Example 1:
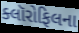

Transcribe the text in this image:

ક્લૉરોફિલના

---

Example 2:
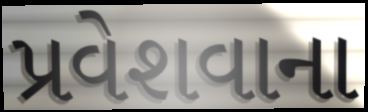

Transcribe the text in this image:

પ્રવેશવાના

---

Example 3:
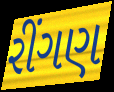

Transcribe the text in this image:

રીંગણ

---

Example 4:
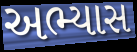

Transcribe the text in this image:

અભ્યાસ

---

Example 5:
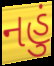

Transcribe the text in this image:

નહું